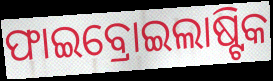
ଫାଇବ୍ରୋଇଲାଷ୍ଟିକ